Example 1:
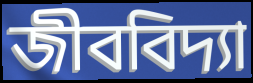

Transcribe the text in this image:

জীববিদ্যা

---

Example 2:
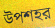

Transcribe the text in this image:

উপশহর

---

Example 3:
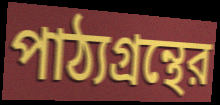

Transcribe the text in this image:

পাঠ্যগ্রন্থের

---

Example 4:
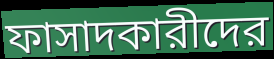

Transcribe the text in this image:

ফাসাদকারীদের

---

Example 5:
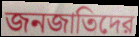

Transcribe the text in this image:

জনজাতিদের